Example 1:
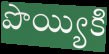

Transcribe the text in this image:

పొయ్యికి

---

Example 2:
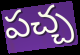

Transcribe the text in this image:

పచ్చ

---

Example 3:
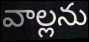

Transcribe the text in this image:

వాల్లను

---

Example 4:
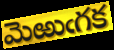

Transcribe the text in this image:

మెఱుఁగక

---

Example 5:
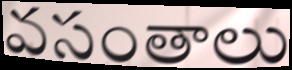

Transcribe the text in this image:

వసంతాలు